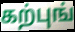
கற்புங்